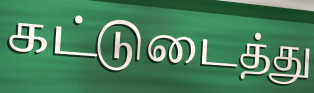
கட்டுடைத்து